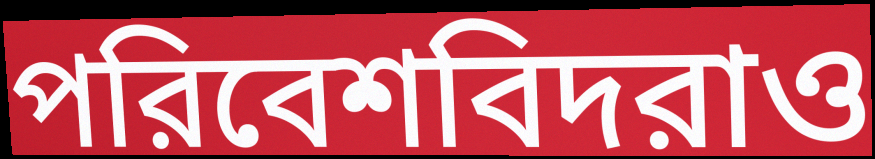
পরিবেশবিদরাও